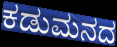
ಕಡುಮನದ